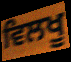
ਵਿਲਖੂ